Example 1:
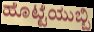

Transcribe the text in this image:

ಹೊಟ್ಟೆಯುಬ್ಬಿ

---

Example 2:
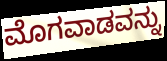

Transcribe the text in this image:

ಮೊಗವಾಡವನ್ನು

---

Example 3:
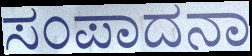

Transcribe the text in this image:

ಸಂಪಾದನಾ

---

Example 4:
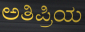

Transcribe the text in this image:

ಅತಿಪ್ರಿಯ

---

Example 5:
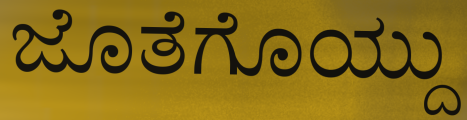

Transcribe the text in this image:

ಜೊತೆಗೊಯ್ದು